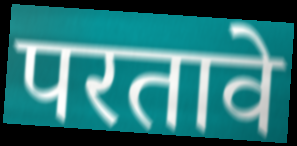
परतावे